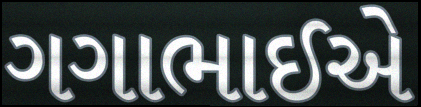
ગગાભાઈએ